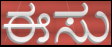
ಈಸು